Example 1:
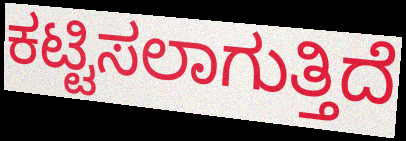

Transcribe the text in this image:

ಕಟ್ಟಿಸಲಾಗುತ್ತಿದೆ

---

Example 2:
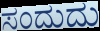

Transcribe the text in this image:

ಸಂದುದು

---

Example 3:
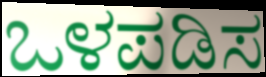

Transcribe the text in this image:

ಒಳಪಡಿಸ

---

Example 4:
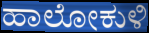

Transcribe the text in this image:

ಹಾಲೋಕುಳಿ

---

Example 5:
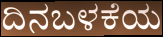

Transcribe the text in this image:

ದಿನಬಳಕೆಯ